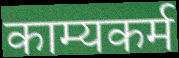
काम्यकर्म